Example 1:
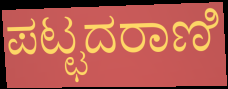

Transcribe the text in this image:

ಪಟ್ಟದರಾಣಿ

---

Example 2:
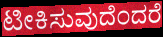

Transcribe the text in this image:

ಟೀಕಿಸುವುದೆಂದರೆ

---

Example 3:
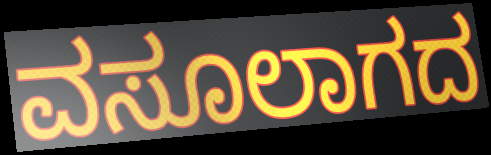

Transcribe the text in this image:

ವಸೂಲಾಗದ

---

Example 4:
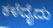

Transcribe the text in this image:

ಕಳೆದೈದು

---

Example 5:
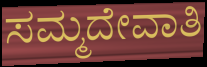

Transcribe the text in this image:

ಸಮ್ಮದೇವಾತಿ